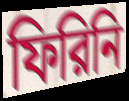
ফিরিনি